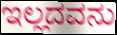
ಇಲ್ಲದವನು